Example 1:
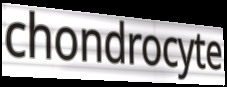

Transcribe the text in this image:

chondrocyte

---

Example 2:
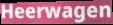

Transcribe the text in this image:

Heerwagen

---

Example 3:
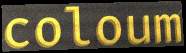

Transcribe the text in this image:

coloum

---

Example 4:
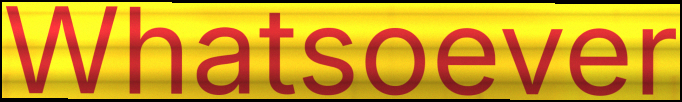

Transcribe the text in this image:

Whatsoever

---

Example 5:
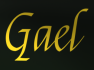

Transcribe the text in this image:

Gael